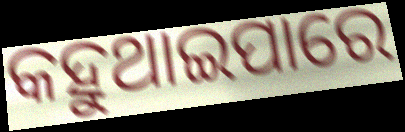
କହୁଥାଇପାରେ